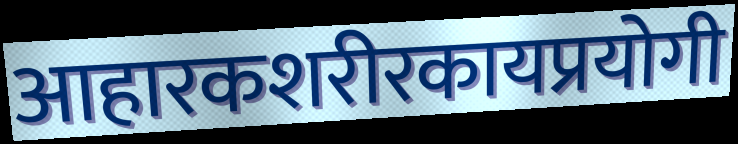
आहारकशरीरकायप्रयोगी